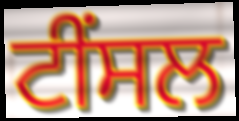
ਟੀਂਸਲ